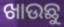
ଖାଉଛୁ